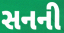
સનની